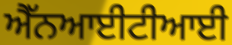
ਐੱਨਆਈਟੀਆਈ